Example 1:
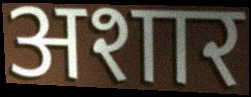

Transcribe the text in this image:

अशार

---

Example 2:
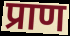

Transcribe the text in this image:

प्राण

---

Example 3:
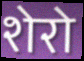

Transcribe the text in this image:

शेरो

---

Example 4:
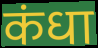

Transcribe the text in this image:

कंधा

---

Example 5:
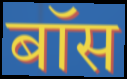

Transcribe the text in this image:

बॉस